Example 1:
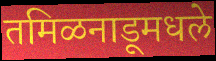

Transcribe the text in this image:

तमिळनाडूमधले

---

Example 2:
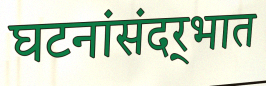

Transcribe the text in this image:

घटनांसंदर्भात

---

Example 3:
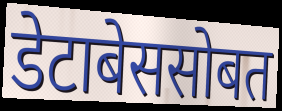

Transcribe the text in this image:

डेटाबेससोबत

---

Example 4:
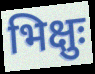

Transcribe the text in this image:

भिक्षुः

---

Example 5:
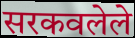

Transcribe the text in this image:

सरकवलेले